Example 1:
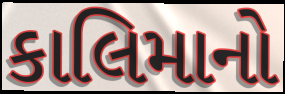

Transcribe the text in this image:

કાલિમાનો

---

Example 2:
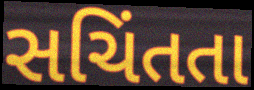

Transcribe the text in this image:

સચિંતતા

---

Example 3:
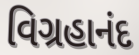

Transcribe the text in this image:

વિગ્રહાનંદ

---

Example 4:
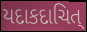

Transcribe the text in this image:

યદાકદાચિત્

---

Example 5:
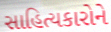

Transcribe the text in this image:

સાહિત્યકારોને